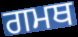
ਗਮਥ